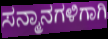
ಸನ್ಮಾನಗಳಿಗಾಗಿ